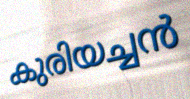
കുരിയച്ചൻ